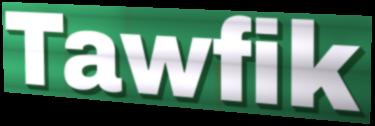
Tawfik